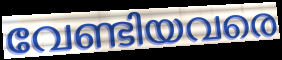
വേണ്ടിയവരെ